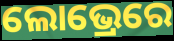
ଲୋଭ୍ରେରେ